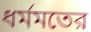
ধর্মমতের